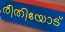
രീതിയോട്